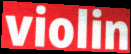
violin